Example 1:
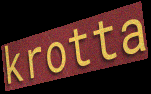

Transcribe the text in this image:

krotta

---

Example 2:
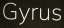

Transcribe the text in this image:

Gyrus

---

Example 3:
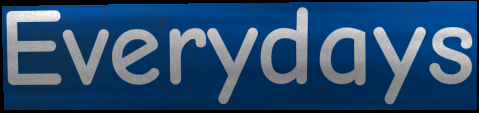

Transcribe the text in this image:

Everydays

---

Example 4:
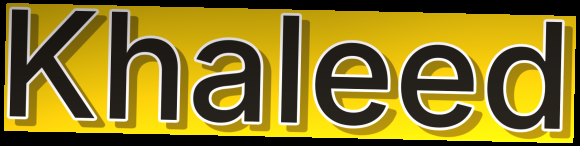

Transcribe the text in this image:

Khaleed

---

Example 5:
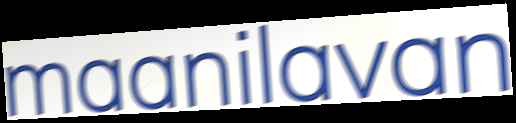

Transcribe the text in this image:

maanilavan